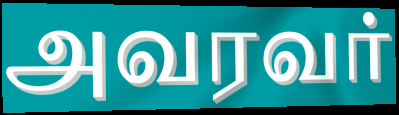
அவரவர்